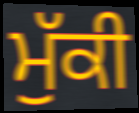
ਮੁੱਕੀ